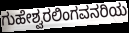
ಗುಹೇಶ್ವರಲಿಂಗವನರಿಯ